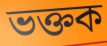
ভক্তক